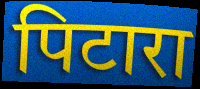
पिटारा